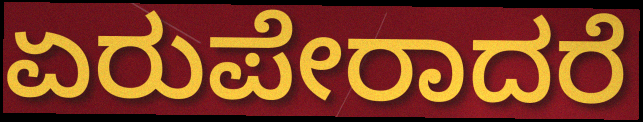
ಏರುಪೇರಾದರೆ